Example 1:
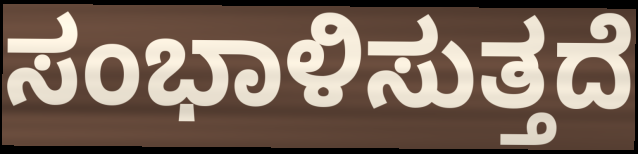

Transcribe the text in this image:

ಸಂಭಾಳಿಸುತ್ತದೆ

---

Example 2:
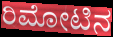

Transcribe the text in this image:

ರಿಮೋಟಿನ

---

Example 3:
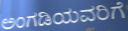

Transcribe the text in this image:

ಅಂಗಡಿಯವರಿಗೆ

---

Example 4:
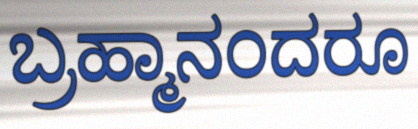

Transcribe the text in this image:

ಬ್ರಹ್ಮಾನಂದರೂ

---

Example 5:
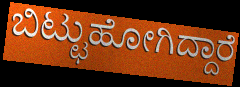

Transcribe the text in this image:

ಬಿಟ್ಟುಹೋಗಿದ್ದಾರೆ